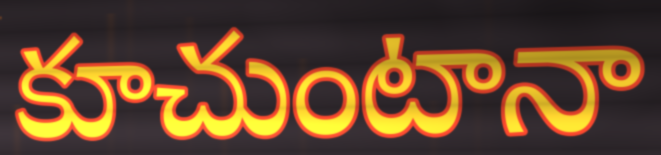
కూచుంటానా